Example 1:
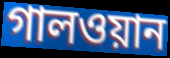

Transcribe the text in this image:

গালওয়ান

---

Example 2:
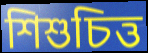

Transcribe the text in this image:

শিশুচিত্ত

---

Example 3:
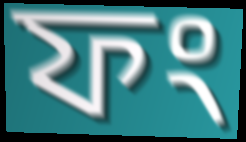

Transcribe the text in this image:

ফং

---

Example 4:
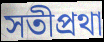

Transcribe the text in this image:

সতীপ্রথা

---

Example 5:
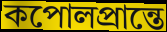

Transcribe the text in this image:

কপোলপ্রান্তে